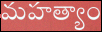
మహత్యాం